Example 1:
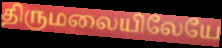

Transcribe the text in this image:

திருமலையிலேயே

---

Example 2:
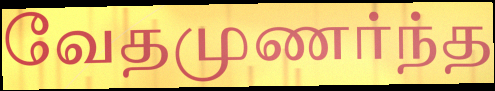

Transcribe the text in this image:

வேதமுணர்ந்த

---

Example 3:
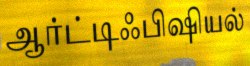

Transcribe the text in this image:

ஆர்ட்டிஃபிஷியல்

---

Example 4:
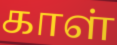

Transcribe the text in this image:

காள்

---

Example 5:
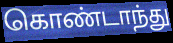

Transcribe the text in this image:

கொண்டாந்து